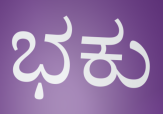
ಭಕು